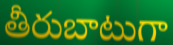
తీరుబాటుగా